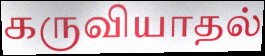
கருவியாதல்